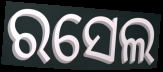
ରସେଲ